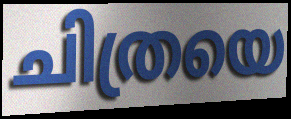
ചിത്രയെ